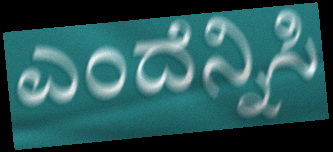
ಎಂದೆನ್ನಿಸಿ